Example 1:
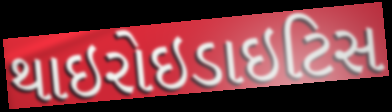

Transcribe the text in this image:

થાઇરોઇડાઇટિસ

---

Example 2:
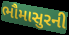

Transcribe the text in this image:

ભૌમાસુરની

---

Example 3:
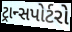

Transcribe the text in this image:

ટ્રાન્સપોર્ટરો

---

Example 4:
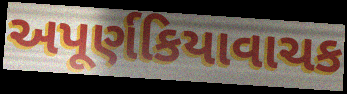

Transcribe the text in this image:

અપૂર્ણકિયાવાચક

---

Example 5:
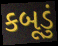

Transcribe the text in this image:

કબૂડું